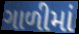
ગાળીમાં